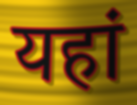
यहां